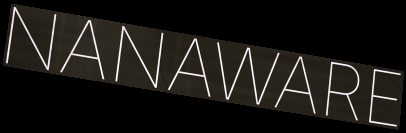
NANAWARE